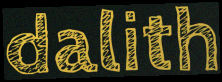
dalith